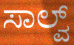
ಸಾಲ್ವ್